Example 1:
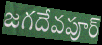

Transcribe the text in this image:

జగదేవపూర్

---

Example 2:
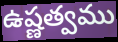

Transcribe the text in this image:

ఉష్ణత్వము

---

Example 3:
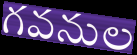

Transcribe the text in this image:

గవనుల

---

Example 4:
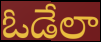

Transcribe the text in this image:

ఓడేలా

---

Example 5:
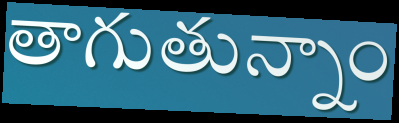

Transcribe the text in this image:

తాగుతున్నాం